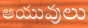
ఆయువులు